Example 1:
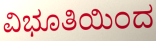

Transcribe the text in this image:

ವಿಭೂತಿಯಿಂದ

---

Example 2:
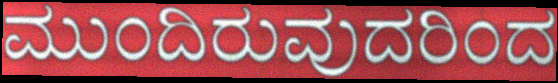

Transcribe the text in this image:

ಮುಂದಿರುವುದರಿಂದ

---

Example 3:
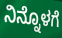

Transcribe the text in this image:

ನಿನ್ನೊಳಗೆ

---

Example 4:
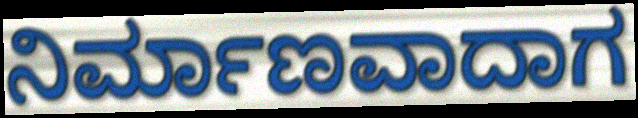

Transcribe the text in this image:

ನಿರ್ಮಾಣವಾದಾಗ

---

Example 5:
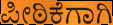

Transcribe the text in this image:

ಪೀಠಿಕೆಗಾಗಿ